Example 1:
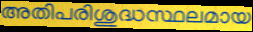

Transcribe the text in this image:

അതിപരിശുദ്ധസ്ഥലമായ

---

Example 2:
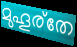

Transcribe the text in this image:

മുഹൂര്തേ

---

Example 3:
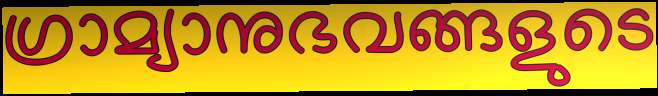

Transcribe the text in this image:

ഗ്രാമ്യാനുഭവങ്ങളുടെ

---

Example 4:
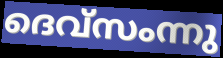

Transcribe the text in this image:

ദെവ്സംന്നു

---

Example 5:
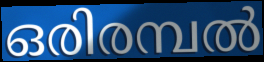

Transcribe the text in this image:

ഒരിരമ്പൽ